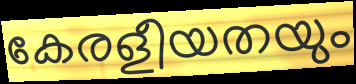
കേരളീയതയും